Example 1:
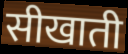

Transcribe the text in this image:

सीखाती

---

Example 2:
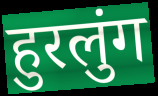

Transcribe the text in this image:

हुरलुंग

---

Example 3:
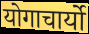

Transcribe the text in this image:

योगाचार्यो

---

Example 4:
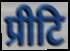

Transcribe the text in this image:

प्रीटि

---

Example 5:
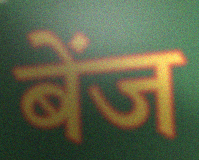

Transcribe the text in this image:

बेंज